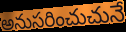
అనుసరించుచునే